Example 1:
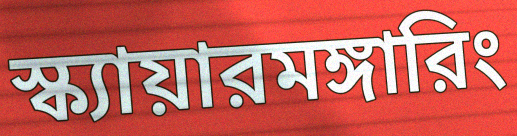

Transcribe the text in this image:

স্ক্যায়ারমঙ্গারিং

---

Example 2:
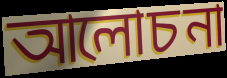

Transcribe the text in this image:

আলোচনা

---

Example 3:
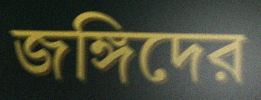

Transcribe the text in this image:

জঙ্গিদের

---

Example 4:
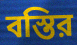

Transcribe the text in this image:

বস্তির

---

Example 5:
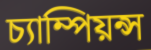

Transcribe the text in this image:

চ্যাম্পিয়ন্স